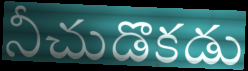
నీచుడొకడు